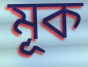
মূক